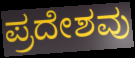
ಪ್ರದೇಶವು